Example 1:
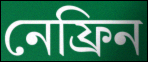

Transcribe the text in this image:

নেফ্রিন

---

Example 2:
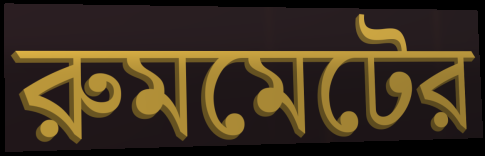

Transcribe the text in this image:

রুমমেটের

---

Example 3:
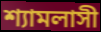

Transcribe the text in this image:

শ্যামলাসী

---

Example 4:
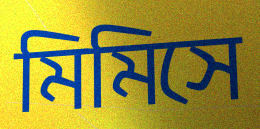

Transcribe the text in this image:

মিমিসে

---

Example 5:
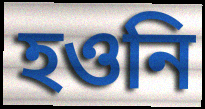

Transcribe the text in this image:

হওনি